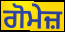
ਗੋਮੇਜ਼